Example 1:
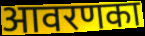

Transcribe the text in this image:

आवरणका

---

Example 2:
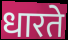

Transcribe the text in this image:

धारते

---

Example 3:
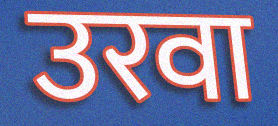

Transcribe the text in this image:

उरवा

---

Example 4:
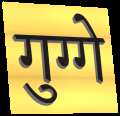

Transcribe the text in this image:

गुग्गे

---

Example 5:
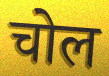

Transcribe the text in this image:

चोल